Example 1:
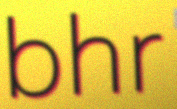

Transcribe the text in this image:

bhr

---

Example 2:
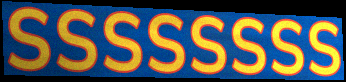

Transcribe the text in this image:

ssssssss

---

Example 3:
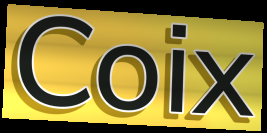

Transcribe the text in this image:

Coix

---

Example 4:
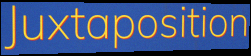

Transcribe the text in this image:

Juxtaposition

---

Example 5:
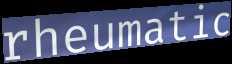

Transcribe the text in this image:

rheumatic